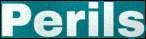
Perils